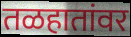
तळहातांवर